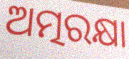
ଅତ୍ମରକ୍ଷା